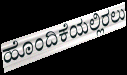
ಹೊಂದಿಕೆಯಲ್ಲಿರಲು